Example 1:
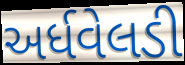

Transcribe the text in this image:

અર્ધવેલડી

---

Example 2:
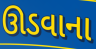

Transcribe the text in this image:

ઊડવાના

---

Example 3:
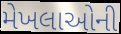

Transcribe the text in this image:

મેખલાઓની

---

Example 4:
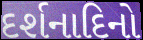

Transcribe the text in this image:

દર્શનાદિનો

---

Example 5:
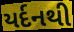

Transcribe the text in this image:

યર્દનથી